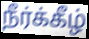
நீர்க்கீழ்